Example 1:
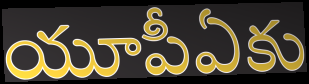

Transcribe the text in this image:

యూపీఏకు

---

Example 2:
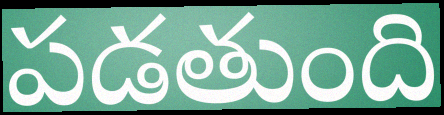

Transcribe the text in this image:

పడతుంది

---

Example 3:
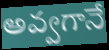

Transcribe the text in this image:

అవ్వగానే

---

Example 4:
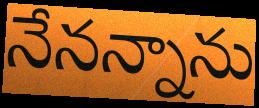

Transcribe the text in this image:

నేనన్నాను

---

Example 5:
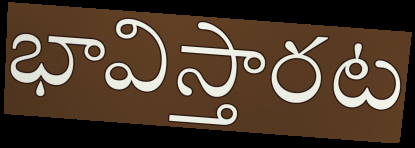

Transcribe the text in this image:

భావిస్తారట